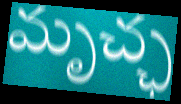
మృచ్ఛ